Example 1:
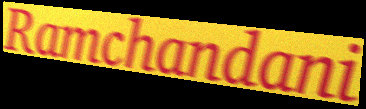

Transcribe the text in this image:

Ramchandani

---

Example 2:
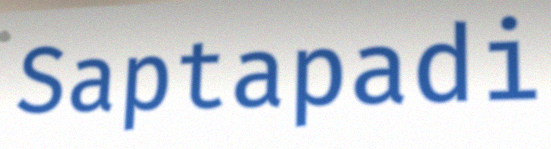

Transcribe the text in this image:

Saptapadi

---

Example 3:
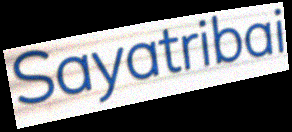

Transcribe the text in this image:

Sayatribai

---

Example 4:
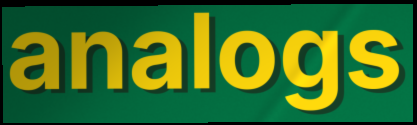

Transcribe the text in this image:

analogs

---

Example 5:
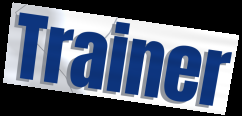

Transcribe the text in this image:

Trainer